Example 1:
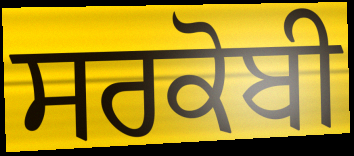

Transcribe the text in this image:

ਸਰਕੋਬੀ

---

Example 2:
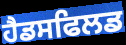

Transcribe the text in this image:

ਹੈਡਸਫਿਲਡ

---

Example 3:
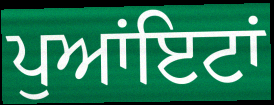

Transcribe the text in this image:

ਪੁਆਂਇਟਾਂ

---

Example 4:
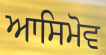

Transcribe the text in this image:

ਆਸਿਮੋਵ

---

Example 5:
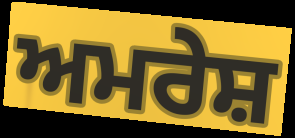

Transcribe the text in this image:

ਅਮਰੇਸ਼